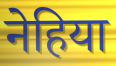
नेहिया